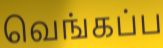
வெங்கப்ப